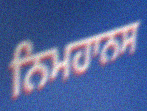
ਨਿਮਹਾਨਸ